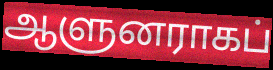
ஆளுனராகப்